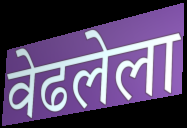
वेढलेला